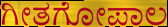
ಗೀತಗೋಪಾಲ